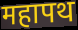
महापथ